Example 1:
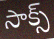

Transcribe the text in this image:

సాక్స్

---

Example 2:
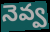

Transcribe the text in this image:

నెవ్వ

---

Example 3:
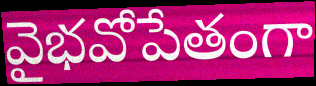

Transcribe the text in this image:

వైభవోపేతంగా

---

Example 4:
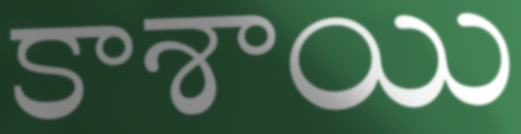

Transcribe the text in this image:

కాశాయి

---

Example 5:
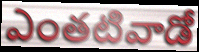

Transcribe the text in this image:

ఎంతటివాడో